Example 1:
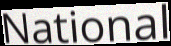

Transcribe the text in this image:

National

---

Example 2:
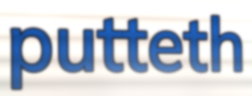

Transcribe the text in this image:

putteth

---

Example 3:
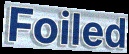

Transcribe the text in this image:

Foiled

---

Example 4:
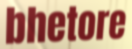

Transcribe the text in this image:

bhetore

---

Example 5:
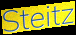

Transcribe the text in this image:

Steitz